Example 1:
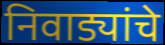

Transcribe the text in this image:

निवाड्यांचे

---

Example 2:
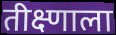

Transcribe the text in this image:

तीक्ष्णाला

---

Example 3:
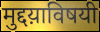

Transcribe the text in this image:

मुद्दय़ाविषयी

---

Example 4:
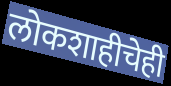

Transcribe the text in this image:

लोकशाहीचेही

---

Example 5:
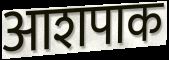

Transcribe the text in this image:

आशपाक